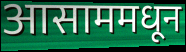
आसाममधून